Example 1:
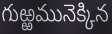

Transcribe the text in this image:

గుఱ్ఱమునెక్కిన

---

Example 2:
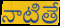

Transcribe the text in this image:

నాటితే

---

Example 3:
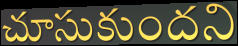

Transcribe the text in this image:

చూసుకుందని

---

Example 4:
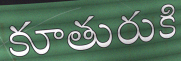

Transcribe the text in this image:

కూతురుకి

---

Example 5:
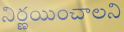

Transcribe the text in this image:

నిర్ణయించాలని